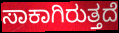
ಸಾಕಾಗಿರುತ್ತದೆ